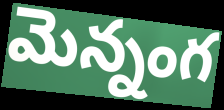
మెన్నంగ